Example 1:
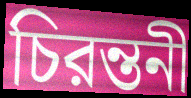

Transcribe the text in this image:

চিরন্তনী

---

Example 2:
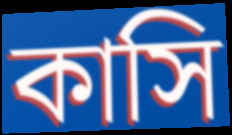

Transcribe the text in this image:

কাসি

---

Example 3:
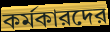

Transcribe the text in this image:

কর্মকারদের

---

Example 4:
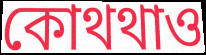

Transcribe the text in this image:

কোথথাও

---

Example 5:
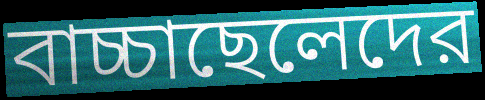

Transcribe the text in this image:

বাচ্চাছেলেদের